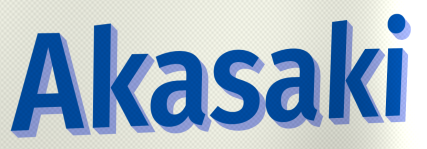
Akasaki